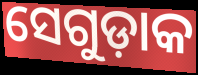
ସେଗୁଡ଼ାକ